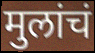
मुलांचं